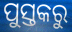
ପୁସ୍ତକରୁ